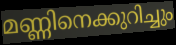
മണ്ണിനെക്കുറിച്ചും